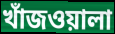
খাঁজওয়ালা